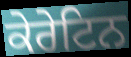
ਕੇਰੇਟਿਨ